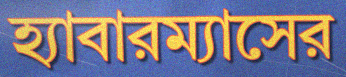
হ্যাবারম্যাসের